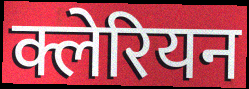
क्लेरियन